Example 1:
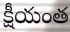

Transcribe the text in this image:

క్షీయంత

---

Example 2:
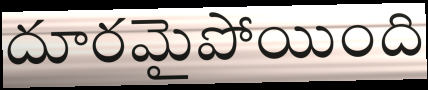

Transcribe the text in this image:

దూరమైపోయింది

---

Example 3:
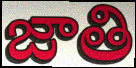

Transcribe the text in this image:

జాతి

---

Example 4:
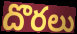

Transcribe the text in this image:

దొరలు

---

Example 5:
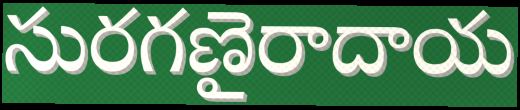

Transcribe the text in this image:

సురగణైరాదాయ